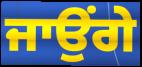
ਜਾਉਂਗੇ